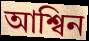
আশ্বিন